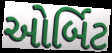
ઓર્બિટ